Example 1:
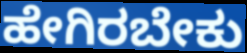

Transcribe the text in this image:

ಹೇಗಿರಬೇಕು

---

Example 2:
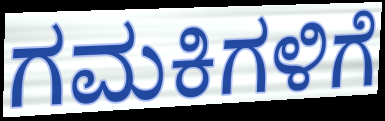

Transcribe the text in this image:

ಗಮಕಿಗಳಿಗೆ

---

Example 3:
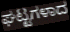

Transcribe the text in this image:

ಘಟ್ಟಗಳಾದ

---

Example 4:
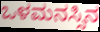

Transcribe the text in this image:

ಒಳಮನಸ್ಸಿನ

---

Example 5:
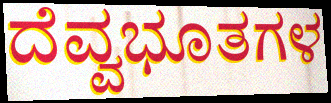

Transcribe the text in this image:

ದೆವ್ವಭೂತಗಳ